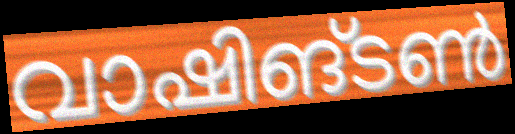
വാഷിങ്ടൺ